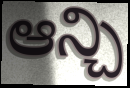
ఆన్చి